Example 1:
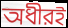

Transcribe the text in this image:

অধীরই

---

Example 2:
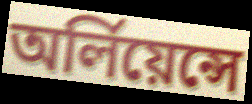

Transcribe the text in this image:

অর্লিয়েন্সে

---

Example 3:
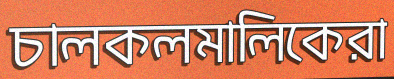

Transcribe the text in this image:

চালকলমালিকেরা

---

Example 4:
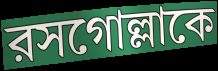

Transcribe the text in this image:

রসগোল্লাকে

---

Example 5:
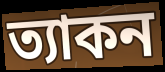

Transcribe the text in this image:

ত্যাকন